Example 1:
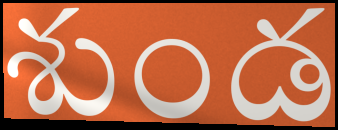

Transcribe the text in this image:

శుండ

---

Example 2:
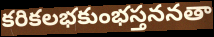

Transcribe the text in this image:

కరికలభకుంభస్తననతా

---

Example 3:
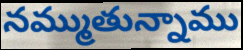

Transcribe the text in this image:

నమ్ముతున్నాము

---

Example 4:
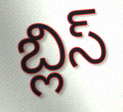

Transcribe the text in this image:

బ్లిస్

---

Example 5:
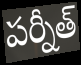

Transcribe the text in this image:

పర్నీత్